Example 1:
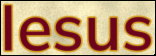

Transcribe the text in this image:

Iesus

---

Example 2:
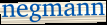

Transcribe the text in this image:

negmann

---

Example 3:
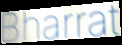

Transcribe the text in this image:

Bharrat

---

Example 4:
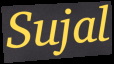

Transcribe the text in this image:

Sujal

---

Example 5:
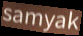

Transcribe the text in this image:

samyak